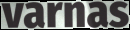
varnas